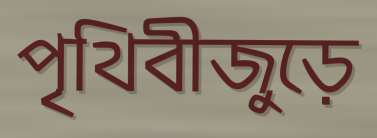
পৃথিবীজুড়ে